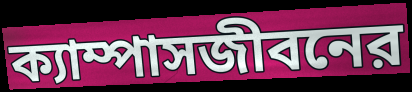
ক্যাম্পাসজীবনের